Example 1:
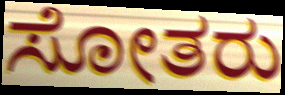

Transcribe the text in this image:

ಸೋತರು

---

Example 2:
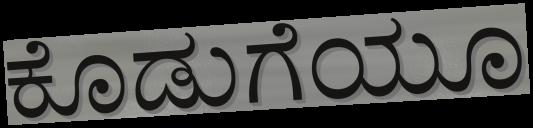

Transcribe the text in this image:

ಕೊಡುಗೆಯೂ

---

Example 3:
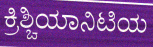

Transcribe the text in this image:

ಕ್ರಿಶ್ಚಿಯಾನಿಟಿಯ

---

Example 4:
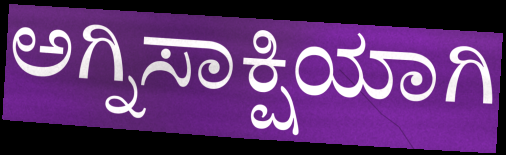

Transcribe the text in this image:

ಅಗ್ನಿಸಾಕ್ಷಿಯಾಗಿ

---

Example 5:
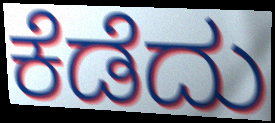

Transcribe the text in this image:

ಕೆಡೆದು